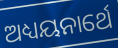
ଅଧ୍ୟୟନାର୍ଥେ